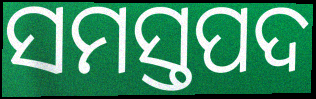
ସମସ୍ତପଦ